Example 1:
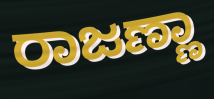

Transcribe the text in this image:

ರಾಜಣ್ಣಾ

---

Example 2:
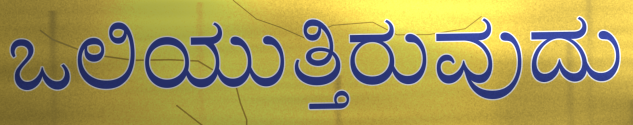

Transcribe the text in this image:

ಒಲಿಯುತ್ತಿರುವುದು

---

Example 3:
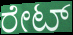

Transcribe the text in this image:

ರೇಟ್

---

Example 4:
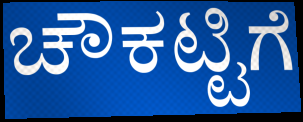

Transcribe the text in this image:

ಚೌಕಟ್ಟಿಗೆ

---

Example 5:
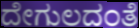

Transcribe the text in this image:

ದೇಗುಲದಂತೆ